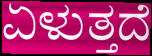
ಏಳುತ್ತದೆ